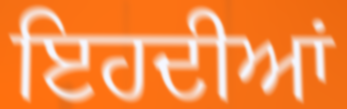
ਇਹਦੀਆਂ